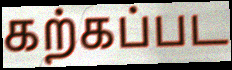
கற்கப்பட